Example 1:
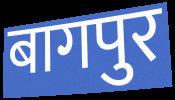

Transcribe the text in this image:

बागपुर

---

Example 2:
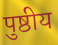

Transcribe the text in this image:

पुष्ठीय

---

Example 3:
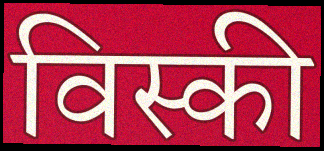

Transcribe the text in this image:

विस्की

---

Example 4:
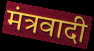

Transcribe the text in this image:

मंत्रवादी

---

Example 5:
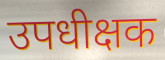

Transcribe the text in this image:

उपधीक्षक